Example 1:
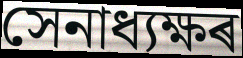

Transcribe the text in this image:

সেনাধ্যক্ষৰ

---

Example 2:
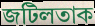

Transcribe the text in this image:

জটিলতাক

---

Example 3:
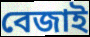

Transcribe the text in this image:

বেজাই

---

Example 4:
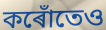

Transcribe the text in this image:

কৰোঁতেও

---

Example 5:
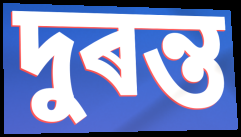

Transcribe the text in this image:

দুৰন্ত